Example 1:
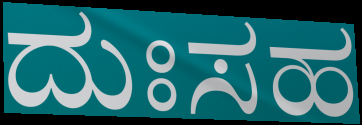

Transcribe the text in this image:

ದುಃಸಹ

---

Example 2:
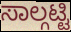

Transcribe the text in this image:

ಸಾಲ್ಗಟ್ಟಿ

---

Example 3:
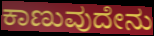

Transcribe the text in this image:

ಕಾಣುವುದೇನು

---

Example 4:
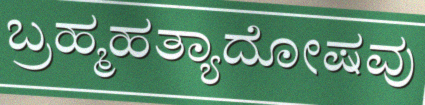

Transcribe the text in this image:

ಬ್ರಹ್ಮಹತ್ಯಾದೋಷವು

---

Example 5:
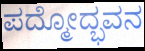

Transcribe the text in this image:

ಪದ್ಮೋದ್ಭವನ